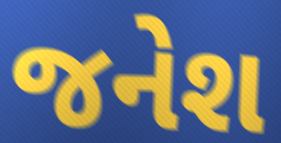
જનેશ